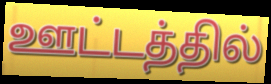
ஊட்டத்தில்